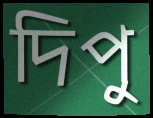
দিপু